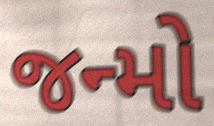
જન્મો